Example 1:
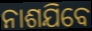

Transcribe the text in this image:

ନାଶଯିବେ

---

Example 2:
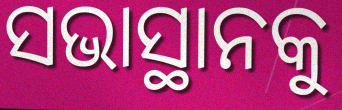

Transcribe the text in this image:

ସଭାସ୍ଥାନକୁ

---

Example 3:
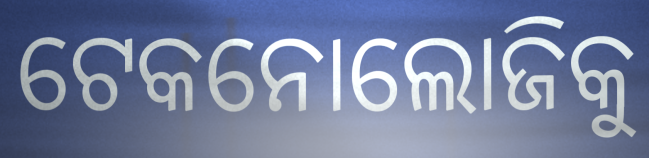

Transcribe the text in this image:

ଟେକନୋଲୋଜିକୁ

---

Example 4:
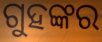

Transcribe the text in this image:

ଗୁହଙ୍କର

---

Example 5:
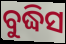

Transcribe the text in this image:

ବୁଦ୍ଧିସ